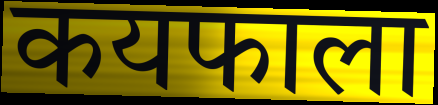
कयफाला